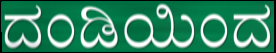
ದಂಡಿಯಿಂದ